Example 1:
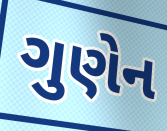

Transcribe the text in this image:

ગુણેન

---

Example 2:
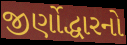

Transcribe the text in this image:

જીર્ણોદ્ધારનો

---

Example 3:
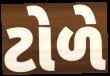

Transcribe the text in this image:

ટોળે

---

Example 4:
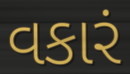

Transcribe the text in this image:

વકારં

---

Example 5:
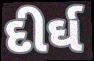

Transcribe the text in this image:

દીર્ઘ